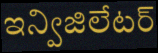
ఇన్విజిలేటర్